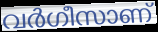
വർഗീസാണ്